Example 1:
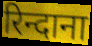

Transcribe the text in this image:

रिन्दाना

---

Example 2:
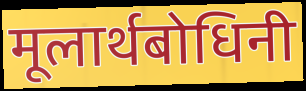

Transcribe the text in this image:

मूलार्थबोधिनी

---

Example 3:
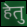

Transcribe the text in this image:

हेतु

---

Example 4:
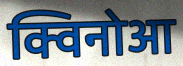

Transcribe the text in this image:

क्विनोआ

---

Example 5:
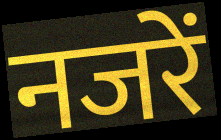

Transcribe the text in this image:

नजरें